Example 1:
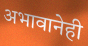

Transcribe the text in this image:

अभावानेही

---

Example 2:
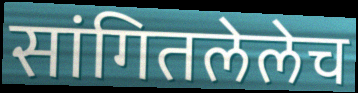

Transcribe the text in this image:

सांगितलेलेच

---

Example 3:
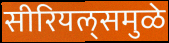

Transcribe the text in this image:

सीरियल्समुळे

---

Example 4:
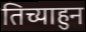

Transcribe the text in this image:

तिच्याहुन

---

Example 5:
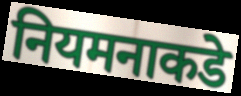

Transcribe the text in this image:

नियमनाकडे